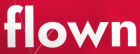
flown